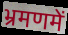
भ्रमणमें